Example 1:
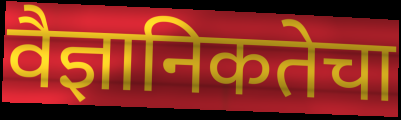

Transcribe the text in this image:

वैज्ञानिकतेचा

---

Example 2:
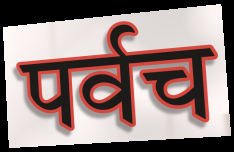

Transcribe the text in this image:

पर्वच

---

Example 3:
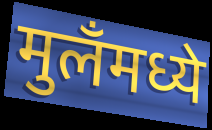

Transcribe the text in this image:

मुलँमध्ये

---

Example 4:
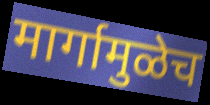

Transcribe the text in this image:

मार्गामुळेच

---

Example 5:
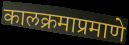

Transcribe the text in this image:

कालक्रमाप्रमाणे